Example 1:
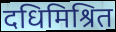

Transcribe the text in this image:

दधिमिश्रित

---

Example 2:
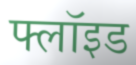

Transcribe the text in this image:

फ्लॉइड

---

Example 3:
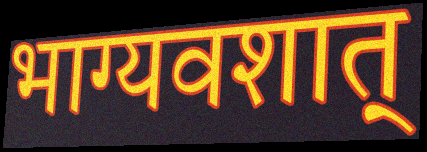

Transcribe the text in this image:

भाग्यवशात्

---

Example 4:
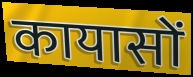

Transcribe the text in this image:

कायासों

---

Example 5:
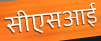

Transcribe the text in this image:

सीएसआई